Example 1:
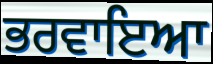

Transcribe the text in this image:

ਭਰਵਾਇਆ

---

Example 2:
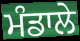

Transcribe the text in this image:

ਮੰਡਾਲੇ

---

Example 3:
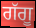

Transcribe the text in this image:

ਗੱਗੂ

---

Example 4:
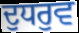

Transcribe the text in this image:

ਦੁਧਰੁਵ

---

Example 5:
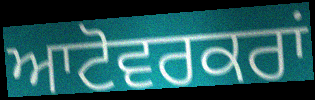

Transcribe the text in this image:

ਆਟੋਵਰਕਰਾਂ